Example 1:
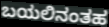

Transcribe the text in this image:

ಬಯಲಿನಂತಹ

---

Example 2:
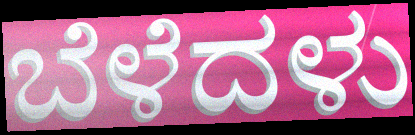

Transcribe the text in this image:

ಬೆಳೆದಳು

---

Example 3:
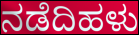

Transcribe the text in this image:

ನಡೆದಿಹಳು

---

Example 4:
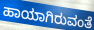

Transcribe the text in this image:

ಹಾಯಾಗಿರುವಂತೆ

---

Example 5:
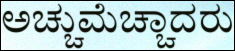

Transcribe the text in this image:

ಅಚ್ಚುಮೆಚ್ಚಾದರು